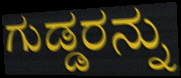
ಗುಡ್ಡರನ್ನು